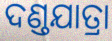
ଦଣ୍ଡଯାତ୍ରା